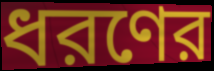
ধরণের